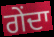
ਗੇਂਦਾ